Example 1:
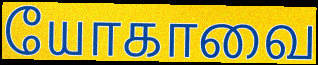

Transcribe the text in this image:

யோகாவை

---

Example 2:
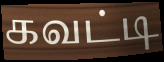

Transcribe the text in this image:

கவட்டி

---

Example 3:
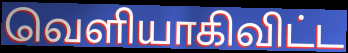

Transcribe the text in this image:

வெளியாகிவிட்ட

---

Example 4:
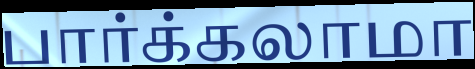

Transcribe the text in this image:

பார்க்கலாமா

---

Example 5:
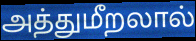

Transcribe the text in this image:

அத்துமீறலால்